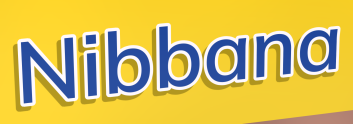
Nibbana